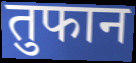
तुफान